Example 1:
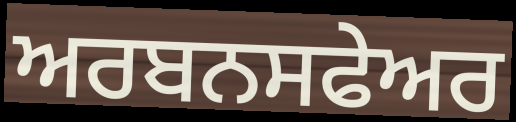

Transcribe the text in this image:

ਅਰਬਨਸਫੇਅਰ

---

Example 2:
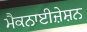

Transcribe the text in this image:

ਮੈਕਨਾਈਜ਼ੇਸ਼ਨ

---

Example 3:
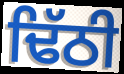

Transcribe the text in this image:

ਢਿੱਠੀ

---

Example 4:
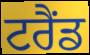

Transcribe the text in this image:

ਟਰੈਂਡ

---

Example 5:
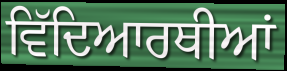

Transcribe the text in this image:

ਵਿੱਦਿਆਰਥੀਆਂ